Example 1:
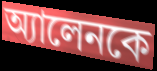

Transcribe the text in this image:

অ্যালেনকে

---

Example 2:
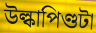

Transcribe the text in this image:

উল্কাপিণ্ডটা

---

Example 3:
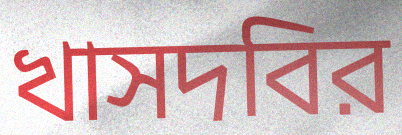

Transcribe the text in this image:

খাসদবির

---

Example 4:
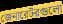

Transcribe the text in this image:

জেনারেটরগুলো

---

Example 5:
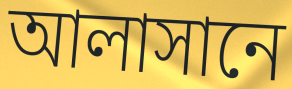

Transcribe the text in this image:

আলাসানে